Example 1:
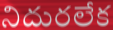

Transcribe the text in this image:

నిదురలేక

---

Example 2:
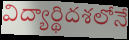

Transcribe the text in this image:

విద్యార్థిదశలోనే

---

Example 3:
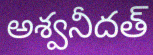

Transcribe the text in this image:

అశ్వనీదత్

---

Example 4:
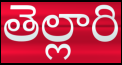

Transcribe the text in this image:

తెల్లారి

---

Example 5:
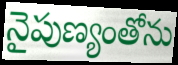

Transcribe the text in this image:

నైపుణ్యంతోను